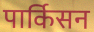
पार्किसन